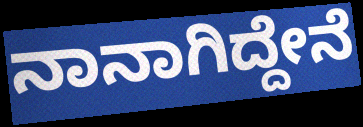
ನಾನಾಗಿದ್ದೇನೆ